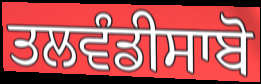
ਤਲਵੰਡੀਸਾਬੋ